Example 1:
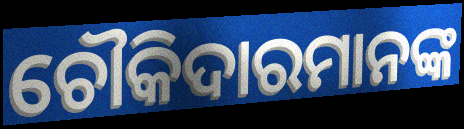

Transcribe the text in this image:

ଚୌକିଦାରମାନଙ୍କ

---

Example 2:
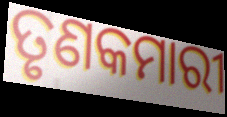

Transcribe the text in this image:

ତୃଣକମାରୀ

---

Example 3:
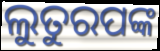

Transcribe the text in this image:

ଲୁତୁରପଙ୍କ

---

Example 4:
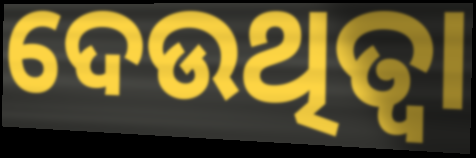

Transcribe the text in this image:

ଦେଉଥିତ୍ବା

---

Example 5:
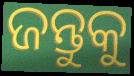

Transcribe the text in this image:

ଜନ୍ତୁକୁ